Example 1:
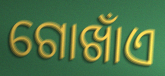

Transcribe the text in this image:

ଗୋଖାଁଏ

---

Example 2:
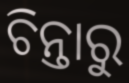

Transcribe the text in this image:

ଚିନ୍ତାରୁ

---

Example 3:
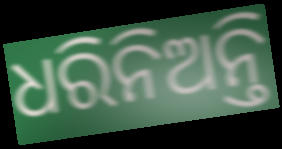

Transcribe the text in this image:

ଧରିନିଅନ୍ତି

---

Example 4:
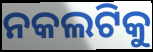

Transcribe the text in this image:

ନକଲଟିକୁ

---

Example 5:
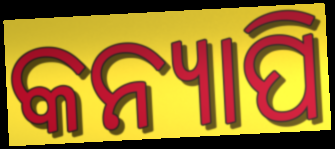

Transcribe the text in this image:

କନ୍ୟାପି